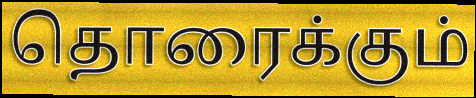
தொரைக்கும்